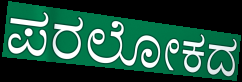
ಪರಲೋಕದ